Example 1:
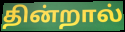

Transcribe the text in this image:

தின்றால்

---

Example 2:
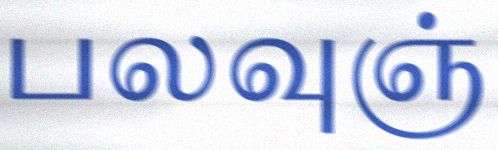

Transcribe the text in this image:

பலவுஞ்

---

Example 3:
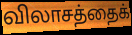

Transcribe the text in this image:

விலாசத்தைக்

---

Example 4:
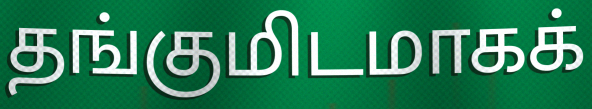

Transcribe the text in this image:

தங்குமிடமாகக்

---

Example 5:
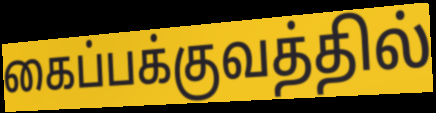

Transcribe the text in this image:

கைப்பக்குவத்தில்